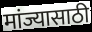
मांज्यासाठी